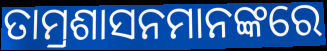
ତାମ୍ରଶାସନମାନଙ୍କରେ